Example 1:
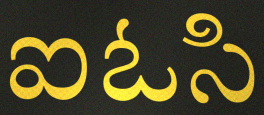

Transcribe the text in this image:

ఐఓసి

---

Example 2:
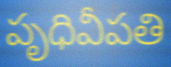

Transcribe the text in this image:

పృధివీపతి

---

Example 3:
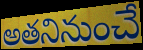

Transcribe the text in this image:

అతనినుంచే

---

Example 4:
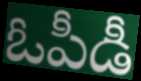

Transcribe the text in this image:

ఓపీడీ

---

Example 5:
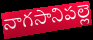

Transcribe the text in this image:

నాగసానిపల్లె